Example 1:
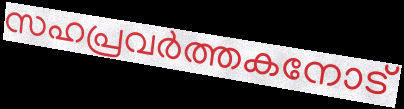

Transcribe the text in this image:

സഹപ്രവർത്തകനോട്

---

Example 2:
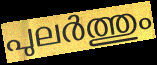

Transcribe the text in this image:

പുലർത്തും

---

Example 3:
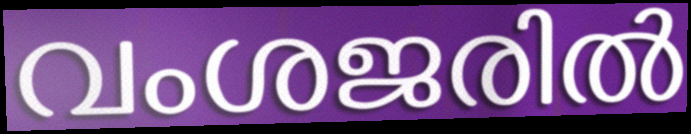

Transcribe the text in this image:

വംശജരിൽ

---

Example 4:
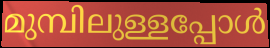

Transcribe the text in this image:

മുമ്പിലുള്ളപ്പോൾ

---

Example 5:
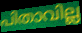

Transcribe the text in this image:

പിതാവില്ല